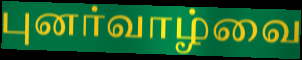
புனர்வாழ்வை